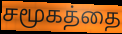
சமூகத்தை